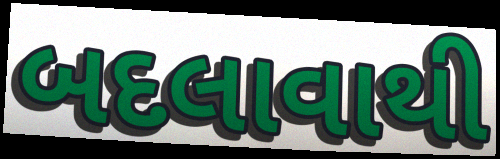
બદલાવાથી